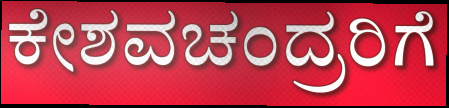
ಕೇಶವಚಂದ್ರರಿಗೆ